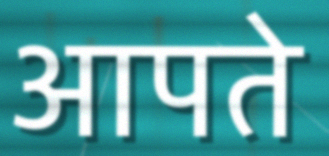
आपते